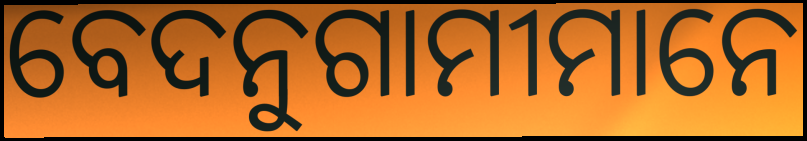
ବେଦନୁଗାମୀମାନେ